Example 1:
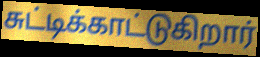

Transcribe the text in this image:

சுட்டிக்காட்டுகிறார்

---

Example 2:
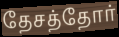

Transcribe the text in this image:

தேசத்தோர்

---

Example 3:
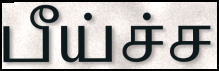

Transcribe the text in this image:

பீய்ச்ச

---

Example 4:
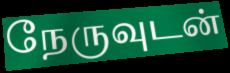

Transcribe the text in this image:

நேருவுடன்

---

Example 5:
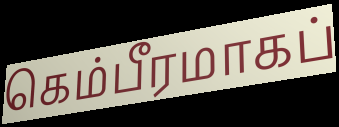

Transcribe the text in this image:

கெம்பீரமாகப்